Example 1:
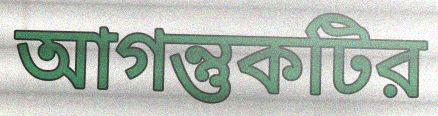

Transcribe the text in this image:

আগন্তুকটির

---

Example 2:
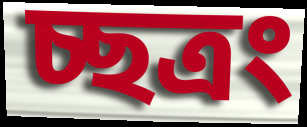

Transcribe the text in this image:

চ্ছত্রং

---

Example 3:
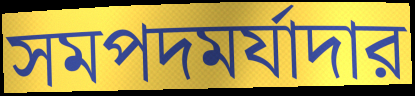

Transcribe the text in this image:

সমপদমর্যাদার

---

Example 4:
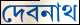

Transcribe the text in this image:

দেবনাথ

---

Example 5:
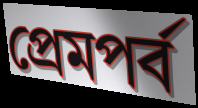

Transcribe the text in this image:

প্রেমপর্ব